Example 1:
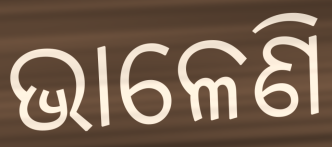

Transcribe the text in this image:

ଭାଳେଣି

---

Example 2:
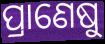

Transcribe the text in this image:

ପ୍ରାଣେଷୁ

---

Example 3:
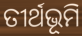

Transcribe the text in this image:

ତୀର୍ଥଭୂମି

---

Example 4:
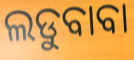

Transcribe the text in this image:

ଲଡୁବାବା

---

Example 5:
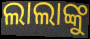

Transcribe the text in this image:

ଲାଲାଙ୍କୁ